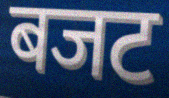
बजट